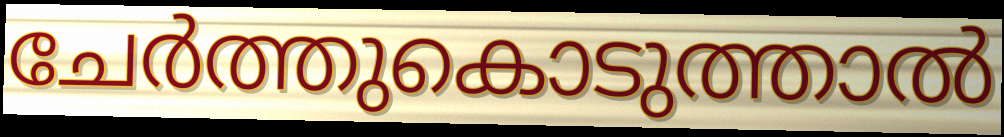
ചേർത്തുകൊടുത്താൽ